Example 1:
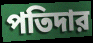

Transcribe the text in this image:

পতিদার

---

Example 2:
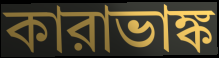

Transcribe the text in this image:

কারাভাঙ্ক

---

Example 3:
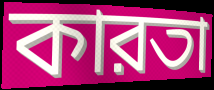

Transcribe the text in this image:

কারতা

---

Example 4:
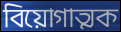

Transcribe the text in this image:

বিয়োগাত্মক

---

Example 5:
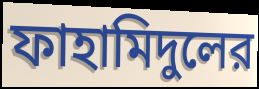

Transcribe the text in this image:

ফাহামিদুলের